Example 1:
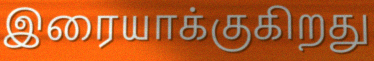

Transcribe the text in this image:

இரையாக்குகிறது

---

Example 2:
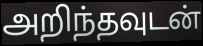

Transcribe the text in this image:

அறிந்தவுடன்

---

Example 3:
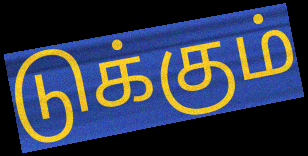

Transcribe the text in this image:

டுக்கும்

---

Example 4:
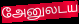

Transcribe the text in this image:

அேனுலடய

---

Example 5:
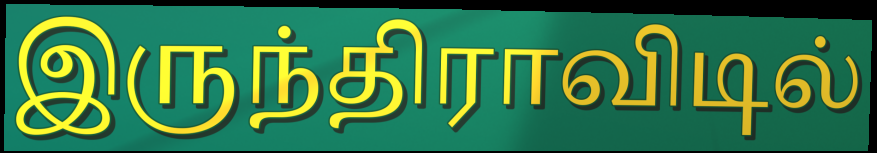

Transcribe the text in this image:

இருந்திராவிடில்